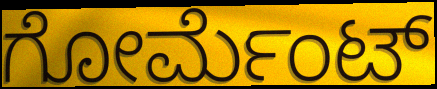
ಗೋರ್ಮೆಂಟ್